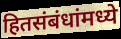
हितसंबंधांमध्ये